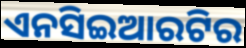
ଏନସିଇଆରଟିର